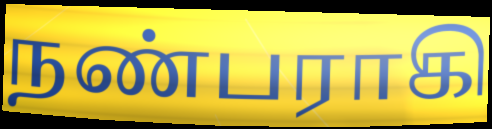
நண்பராகி